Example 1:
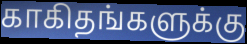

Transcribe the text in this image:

காகிதங்களுக்கு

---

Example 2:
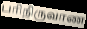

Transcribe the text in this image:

பரிநிருவாண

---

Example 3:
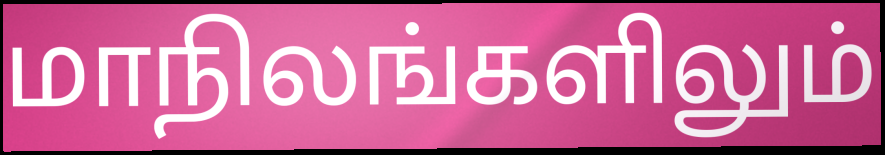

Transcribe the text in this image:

மாநிலங்களிலும்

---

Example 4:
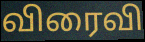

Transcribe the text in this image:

விரைவி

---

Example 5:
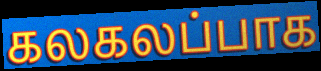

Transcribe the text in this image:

கலகலப்பாக